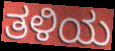
ತಳಿಯ